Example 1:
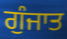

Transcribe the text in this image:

ਗੁੰਜਾਤ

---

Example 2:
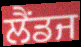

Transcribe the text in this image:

ਲੈਂਡਜ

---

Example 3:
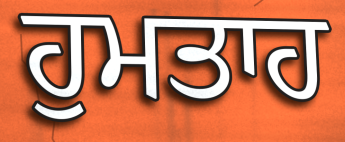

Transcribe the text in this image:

ਹੁਮਤਾਹ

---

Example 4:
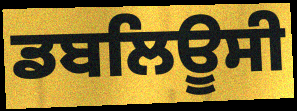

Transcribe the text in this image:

ਡਬਲਿਊਸੀ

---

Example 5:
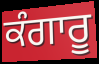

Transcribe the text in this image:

ਕੰਗਾਰੂ